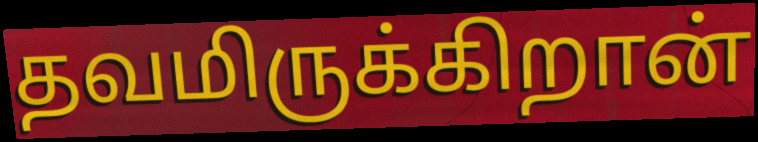
தவமிருக்கிறான்